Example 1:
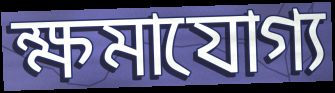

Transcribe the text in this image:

ক্ষমাযোগ্য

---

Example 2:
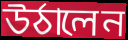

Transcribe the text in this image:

উঠালেন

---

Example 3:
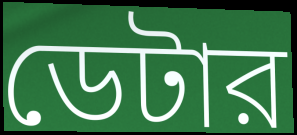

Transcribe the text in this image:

ডেটার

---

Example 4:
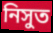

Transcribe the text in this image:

নিসুত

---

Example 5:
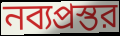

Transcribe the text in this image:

নব্যপ্রস্তর